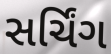
સર્ચિંગ